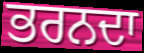
ਭਰਨਦਾ